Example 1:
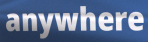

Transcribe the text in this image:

anywhere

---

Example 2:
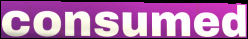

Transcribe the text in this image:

consumed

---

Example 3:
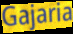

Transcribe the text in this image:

Gajaria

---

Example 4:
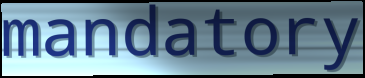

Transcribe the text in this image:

mandatory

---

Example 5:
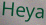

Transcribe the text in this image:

Heya